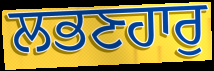
ਲਭਣਹਾਰੁ